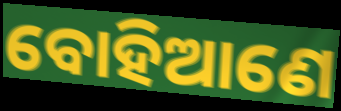
ବୋହିଆଣେ